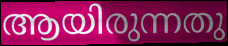
ആയിരുന്നതു